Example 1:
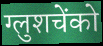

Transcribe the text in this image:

ग्लुशचेंको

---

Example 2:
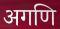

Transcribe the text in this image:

अगणि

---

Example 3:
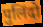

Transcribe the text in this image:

पुलिंदो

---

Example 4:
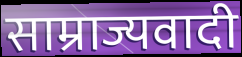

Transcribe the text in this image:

साम्राज्‍यवादी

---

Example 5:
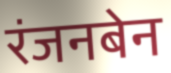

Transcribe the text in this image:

रंजनबेन